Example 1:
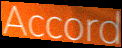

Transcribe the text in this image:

Accord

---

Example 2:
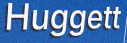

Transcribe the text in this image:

Huggett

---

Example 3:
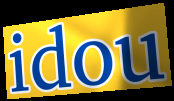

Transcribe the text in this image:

idou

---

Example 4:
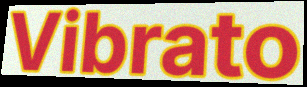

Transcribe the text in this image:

Vibrato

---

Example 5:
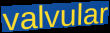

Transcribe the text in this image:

valvular